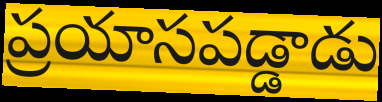
ప్రయాసపడ్డాడు